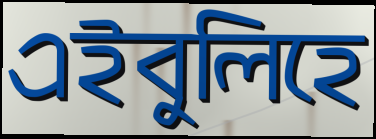
এইবুলিহে